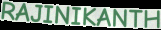
RAJINIKANTH